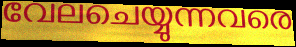
വേലചെയ്യുന്നവരെ